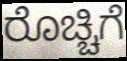
ರೊಚ್ಚಿಗೆ